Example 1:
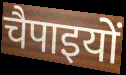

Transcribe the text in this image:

चैपाइयों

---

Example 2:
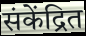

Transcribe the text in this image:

संकेंद्रित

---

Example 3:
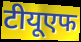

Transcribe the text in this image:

टीयूएफ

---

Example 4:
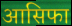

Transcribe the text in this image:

आसिफा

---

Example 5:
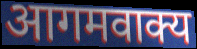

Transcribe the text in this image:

आगमवाक्य